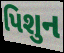
પિશુન